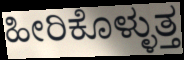
ಹೀರಿಕೊಳ್ಳುತ್ತ